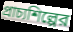
প্রাচ্যশিল্পের